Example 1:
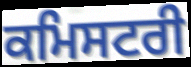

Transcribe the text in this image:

ਕਮਿਸਟਰੀ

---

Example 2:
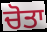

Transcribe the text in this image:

ਚੋਤਾ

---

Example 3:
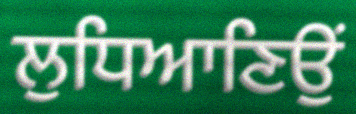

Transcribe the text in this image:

ਲੁਧਿਆਣਿਉਂ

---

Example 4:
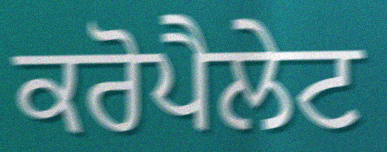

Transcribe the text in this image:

ਕਰੋਪੈਲੇਟ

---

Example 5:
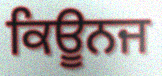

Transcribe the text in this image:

ਕਿਊਨਜ